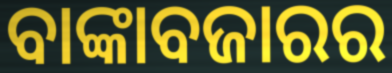
ବାଙ୍କାବଜାରର